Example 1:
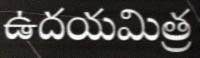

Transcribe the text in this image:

ఉదయమిత్ర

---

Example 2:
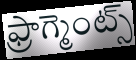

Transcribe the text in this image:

ఫ్రాగ్మెంట్స్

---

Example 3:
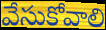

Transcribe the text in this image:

వేసుకోవాలి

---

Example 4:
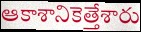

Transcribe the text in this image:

ఆకాశానికెత్తేశారు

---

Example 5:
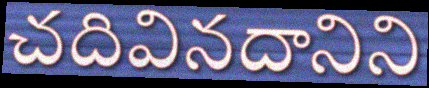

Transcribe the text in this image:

చదివినదానిని